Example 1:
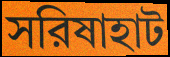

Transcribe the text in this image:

সরিষাহাট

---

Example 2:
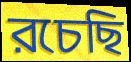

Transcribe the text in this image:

রচেছি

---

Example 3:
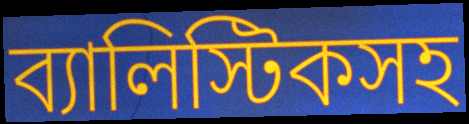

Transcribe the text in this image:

ব্যালিস্টিকসহ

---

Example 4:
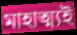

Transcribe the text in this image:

মাহাত্ম্যই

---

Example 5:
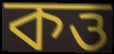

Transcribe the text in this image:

কত্ত